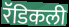
रॅडिकली